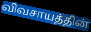
விவசாயத்தின்